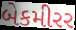
બેકમીરર